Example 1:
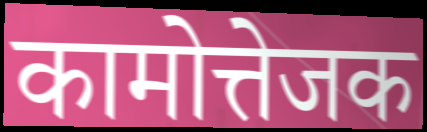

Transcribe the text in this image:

कामोत्तेजक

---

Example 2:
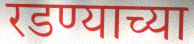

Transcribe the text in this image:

रडण्याच्या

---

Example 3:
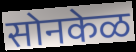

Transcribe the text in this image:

सोनकेळ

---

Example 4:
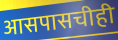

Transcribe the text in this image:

आसपासचीही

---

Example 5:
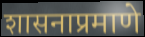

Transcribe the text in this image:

शासनाप्रमाणे